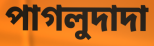
পাগলুদাদা